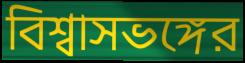
বিশ্বাসভঙ্গের